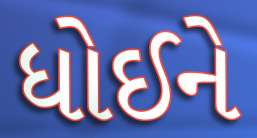
ધોઈને